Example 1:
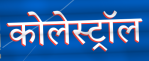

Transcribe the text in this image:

कोलेस्‍ट्रॉल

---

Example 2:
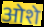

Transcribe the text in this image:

ओशे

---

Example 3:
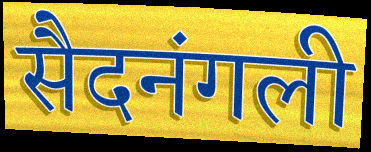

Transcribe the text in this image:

सैदनंगली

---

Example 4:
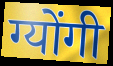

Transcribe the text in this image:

ग्योंगी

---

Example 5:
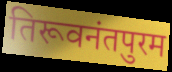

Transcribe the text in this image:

तिरूवनंतपुरम